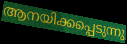
ആനയിക്കപ്പെടുന്നു